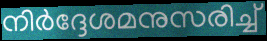
നിർദ്ദേശമനുസരിച്ച്